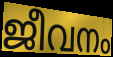
ജീവനം